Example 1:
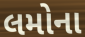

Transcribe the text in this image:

લમોના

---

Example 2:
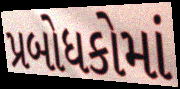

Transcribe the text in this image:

પ્રબોધકોમાં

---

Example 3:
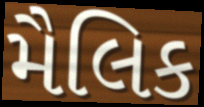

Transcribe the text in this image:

મૈલિક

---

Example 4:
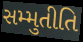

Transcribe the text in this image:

સમ્મુતીતિ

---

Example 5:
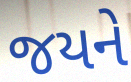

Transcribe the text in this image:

જયને